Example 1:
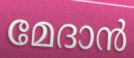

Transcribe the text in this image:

മേദാൻ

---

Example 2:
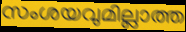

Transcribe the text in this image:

സംശയവുമില്ലാത്ത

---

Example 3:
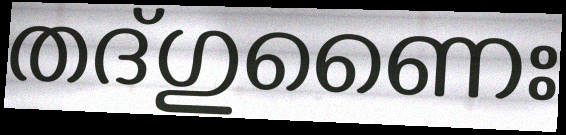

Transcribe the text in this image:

തദ്ഗുണൈഃ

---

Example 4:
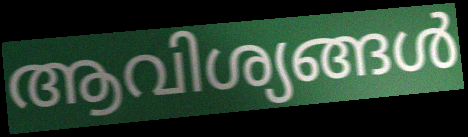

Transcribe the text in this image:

ആവിശ്യങ്ങൾ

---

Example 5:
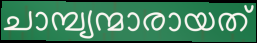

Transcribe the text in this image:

ചാമ്പ്യന്മാരായത്